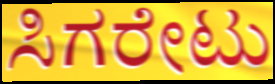
ಸಿಗರೇಟು